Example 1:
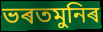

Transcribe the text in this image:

ভৰতমুনিৰ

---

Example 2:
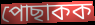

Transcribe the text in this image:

পোছাকক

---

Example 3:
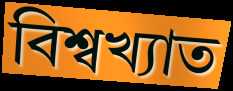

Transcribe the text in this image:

বিশ্বখ্যাত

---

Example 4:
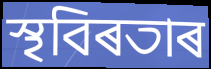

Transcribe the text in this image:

স্থবিৰতাৰ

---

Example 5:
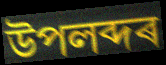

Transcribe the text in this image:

উপলব্দৰ